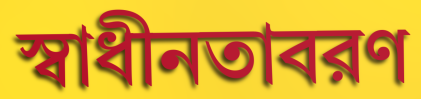
স্বাধীনতাবরণ